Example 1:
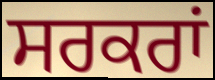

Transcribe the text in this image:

ਸਰਕਰਾਂ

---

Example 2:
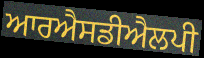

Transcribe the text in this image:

ਆਰਐਸਡੀਐਲਪੀ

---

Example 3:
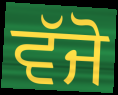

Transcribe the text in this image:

ਵੱਜੋ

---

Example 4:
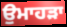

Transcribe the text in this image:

ਉਮਾਹੜਾ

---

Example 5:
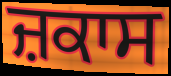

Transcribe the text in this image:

ਜ਼ਕਾਸ